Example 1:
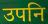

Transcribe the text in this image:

उपनि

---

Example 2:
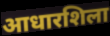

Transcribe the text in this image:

आधारशिला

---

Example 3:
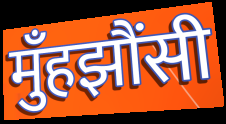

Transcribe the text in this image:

मुँहझौंसी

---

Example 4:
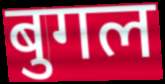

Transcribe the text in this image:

बुगल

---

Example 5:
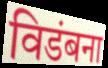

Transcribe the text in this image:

विडंबना